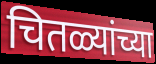
चितळ्यांच्या